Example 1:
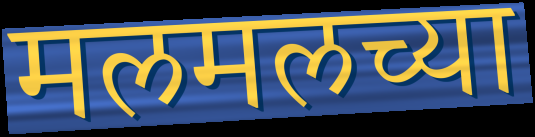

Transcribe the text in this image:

मलमलच्या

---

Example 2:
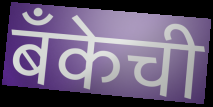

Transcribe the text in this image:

बँकेची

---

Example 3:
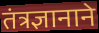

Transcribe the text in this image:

तंत्रज्ञानाने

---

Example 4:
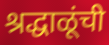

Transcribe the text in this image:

श्रद्धाळूंची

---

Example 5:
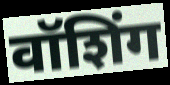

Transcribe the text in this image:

वॉशिंग